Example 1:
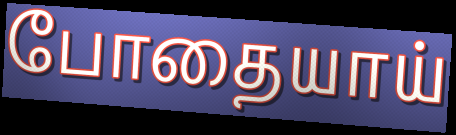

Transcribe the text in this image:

போதையாய்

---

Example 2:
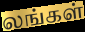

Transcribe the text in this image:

லங்கள்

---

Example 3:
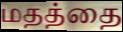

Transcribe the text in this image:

மதத்தை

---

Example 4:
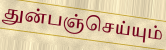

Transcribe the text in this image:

துன்பஞ்செய்யும்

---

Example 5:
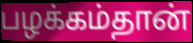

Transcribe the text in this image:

பழக்கம்தான்